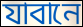
যাবানে